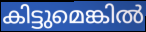
കിട്ടുമെങ്കിൽ